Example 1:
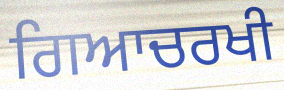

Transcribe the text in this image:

ਗਿਆਚਰਖੀ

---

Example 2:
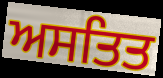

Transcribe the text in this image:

ਅਸਤਿਤ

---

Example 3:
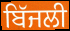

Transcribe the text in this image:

ਬਿੱਜਲੀ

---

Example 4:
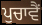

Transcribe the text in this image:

ਪੁਚਾਵੈਂ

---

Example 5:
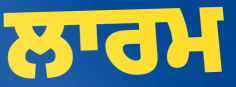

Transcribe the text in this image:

ਲਾਰਮ